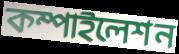
কম্পাইলেশন